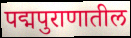
पद्मपुराणातील